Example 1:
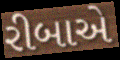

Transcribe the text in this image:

રીબાએ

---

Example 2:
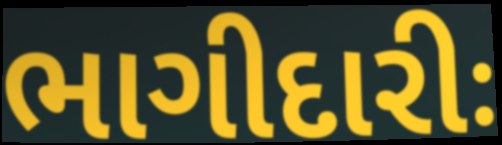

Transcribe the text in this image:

ભાગીદારીઃ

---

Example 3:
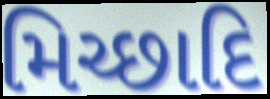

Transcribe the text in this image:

મિચ્છાદિ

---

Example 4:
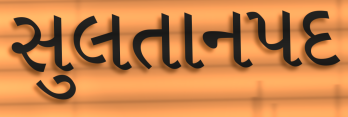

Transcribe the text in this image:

સુલતાનપદ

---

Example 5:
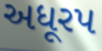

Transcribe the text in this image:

અધૂરપ